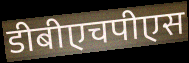
डीबीएचपीएस